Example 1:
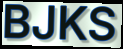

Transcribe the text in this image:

BJKS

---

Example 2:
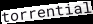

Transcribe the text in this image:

torrential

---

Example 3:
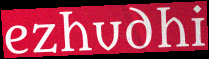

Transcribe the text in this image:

ezhudhi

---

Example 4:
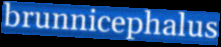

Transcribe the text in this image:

brunnicephalus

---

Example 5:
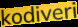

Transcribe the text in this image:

kodiveri